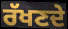
ਰੱਖਣਦੇ